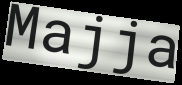
Majja